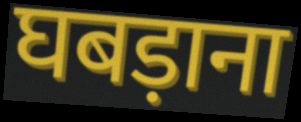
घबड़ाना